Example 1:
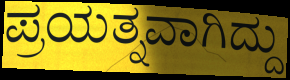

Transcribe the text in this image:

ಪ್ರಯತ್ನವಾಗಿದ್ದು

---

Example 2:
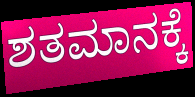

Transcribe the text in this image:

ಶತಮಾನಕ್ಕೆ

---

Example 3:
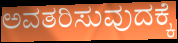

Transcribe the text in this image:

ಅವತರಿಸುವುದಕ್ಕೆ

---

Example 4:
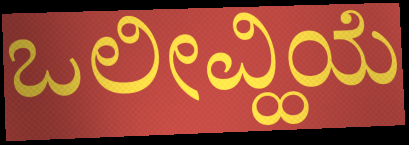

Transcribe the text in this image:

ಒಲೀವ್ಹಿಯೆ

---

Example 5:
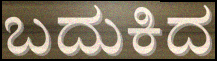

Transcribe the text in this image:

ಬದುಕಿದ